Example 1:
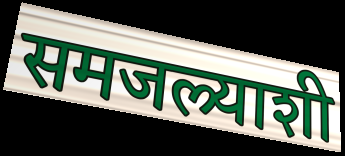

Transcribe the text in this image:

समजल्याशी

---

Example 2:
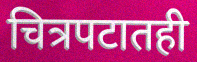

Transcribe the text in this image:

चित्रपटातही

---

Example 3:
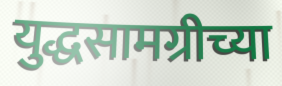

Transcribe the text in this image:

युद्धसामग्रीच्या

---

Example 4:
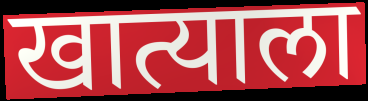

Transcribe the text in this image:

खात्याला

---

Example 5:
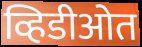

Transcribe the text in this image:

व्हिडीओत